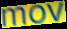
mov